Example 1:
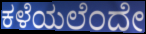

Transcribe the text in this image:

ಕಳೆಯಲೆಂದೇ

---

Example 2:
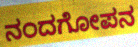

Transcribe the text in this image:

ನಂದಗೋಪನ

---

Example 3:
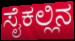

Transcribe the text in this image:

ಸೈಕಲ್ಲಿನ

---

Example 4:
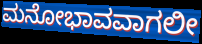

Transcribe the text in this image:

ಮನೋಭಾವವಾಗಲೀ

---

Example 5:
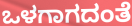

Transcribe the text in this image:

ಒಳಗಾಗದಂತೆ